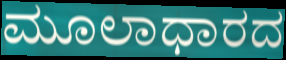
ಮೂಲಾಧಾರದ